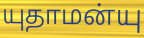
யுதாமன்யு